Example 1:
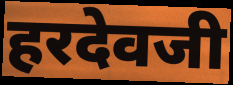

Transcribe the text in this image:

हरदेवजी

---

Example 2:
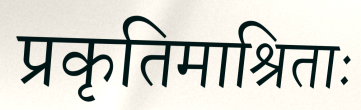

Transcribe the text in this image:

प्रकृतिमाश्रिताः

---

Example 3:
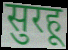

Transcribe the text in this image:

सुरहू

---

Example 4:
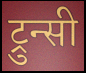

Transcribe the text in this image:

ट्रुन्सी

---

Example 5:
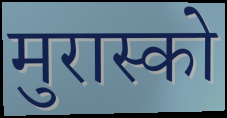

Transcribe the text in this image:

मुरास्को